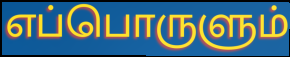
எப்பொருளும்